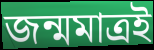
জন্মমাত্রই